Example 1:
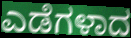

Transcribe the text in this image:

ಎಡೆಗಳಾದ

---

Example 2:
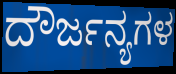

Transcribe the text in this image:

ದೌರ್ಜನ್ಯಗಳ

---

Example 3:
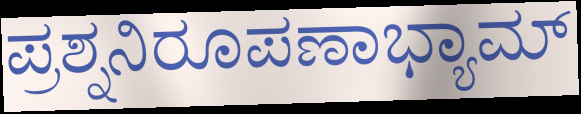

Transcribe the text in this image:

ಪ್ರಶ್ನನಿರೂಪಣಾಭ್ಯಾಮ್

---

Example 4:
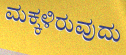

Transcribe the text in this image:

ಮಕ್ಕಳಿರುವುದು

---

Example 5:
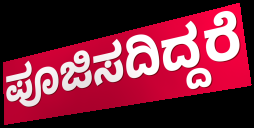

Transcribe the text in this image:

ಪೂಜಿಸದಿದ್ದರೆ